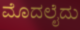
ಮೊದಲೈದು